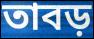
তাবড়